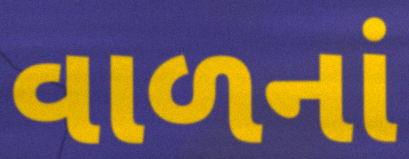
વાળનાં